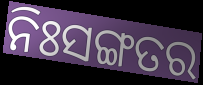
ନିଃସଙ୍ଗତର